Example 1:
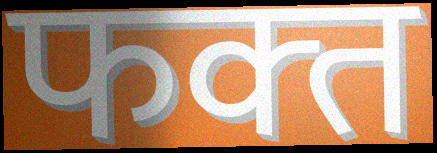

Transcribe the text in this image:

फक्‍त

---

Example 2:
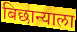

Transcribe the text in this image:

बिछान्याला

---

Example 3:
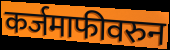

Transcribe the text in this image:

कर्जमाफीवरुन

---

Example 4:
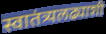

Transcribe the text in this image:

स्वातंत्र्यलढ्याशी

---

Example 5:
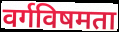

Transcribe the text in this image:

वर्गविषमता